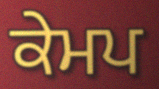
ਕੇਮਪ